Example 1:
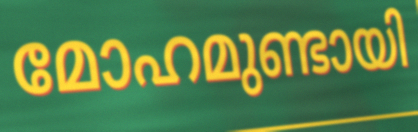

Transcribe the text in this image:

മോഹമുണ്ടായി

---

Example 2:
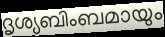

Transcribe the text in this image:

ദൃശ്യബിംബമായും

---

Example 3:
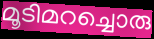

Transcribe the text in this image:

മൂടിമറച്ചൊരു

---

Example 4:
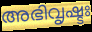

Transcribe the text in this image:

അഭിവൃഷ്ടഃ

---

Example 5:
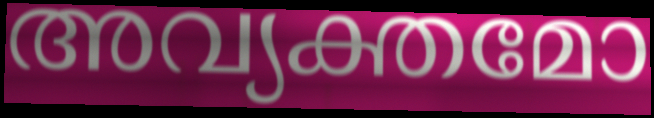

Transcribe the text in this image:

അവ്യക്തമോ